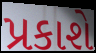
પ્રકાશે